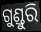
ଗୁଣ୍ଡୁରି